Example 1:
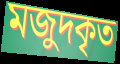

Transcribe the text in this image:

মজুদকৃত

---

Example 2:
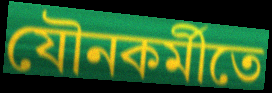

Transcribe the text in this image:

যৌনকর্মীতে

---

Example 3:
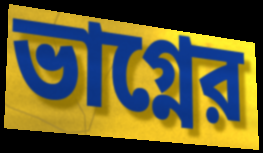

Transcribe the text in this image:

ভাগ্নের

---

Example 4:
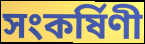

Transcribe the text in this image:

সংকর্ষিণী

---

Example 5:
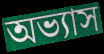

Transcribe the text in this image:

অভ্যাস